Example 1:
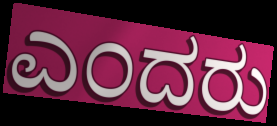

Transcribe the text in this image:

ಎಂದರು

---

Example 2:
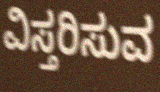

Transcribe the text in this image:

ವಿಸ್ತರಿಸುವ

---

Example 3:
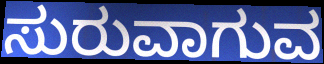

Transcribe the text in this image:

ಸುರುವಾಗುವ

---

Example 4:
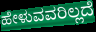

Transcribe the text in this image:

ಹೇಳುವವರಿಲ್ಲದೆ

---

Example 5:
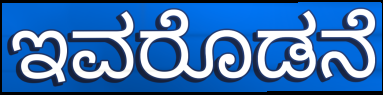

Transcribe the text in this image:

ಇವರೊಡನೆ